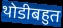
थोडीबहुत